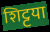
शिट्टया